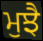
ਮੁਝੈ